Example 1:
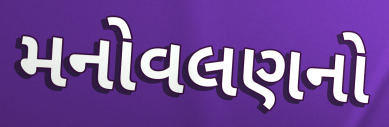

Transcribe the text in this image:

મનોવલણનો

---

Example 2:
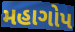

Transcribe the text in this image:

મહાગોપ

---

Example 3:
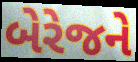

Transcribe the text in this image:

બેરેજને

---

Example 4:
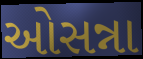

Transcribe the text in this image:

ઓસન્ના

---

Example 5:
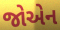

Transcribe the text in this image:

જોએન